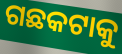
ଗଛକଟାକୁ